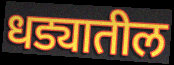
धड्यातील